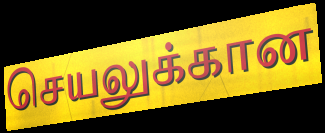
செயலுக்கான